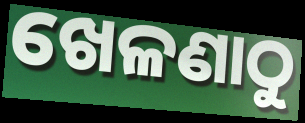
ଖେଳଣାଠୁ